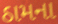
ઠામના